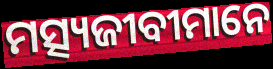
ମତ୍ସ୍ୟଜୀବୀମାନେ